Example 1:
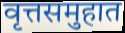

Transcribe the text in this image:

वृत्तसमुहात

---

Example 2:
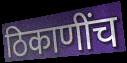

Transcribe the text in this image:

ठिकाणींच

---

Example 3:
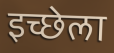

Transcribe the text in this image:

इच्छेला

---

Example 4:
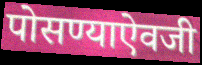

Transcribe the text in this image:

पोसण्याऐवजी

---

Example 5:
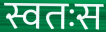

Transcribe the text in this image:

स्वतःस